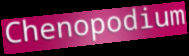
Chenopodium